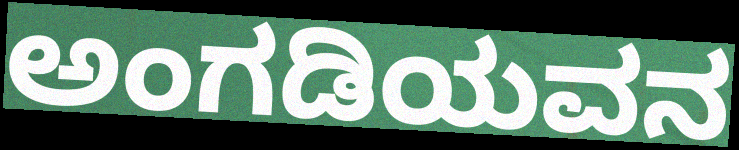
ಅಂಗಡಿಯವನ